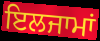
ਇਲਜਾਮਾਂ